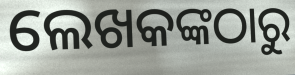
ଲେଖକଙ୍କଠାରୁ